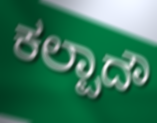
ಕಲ್ಪಾದೌ